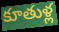
కూతుళ్ల